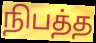
நிபத்த